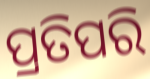
ପ୍ରତିପରି